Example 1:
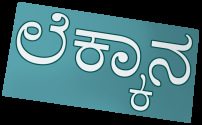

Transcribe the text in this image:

ಲೆಕ್ಕಾನ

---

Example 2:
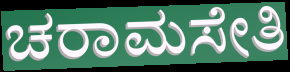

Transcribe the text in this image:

ಚರಾಮಸೇತಿ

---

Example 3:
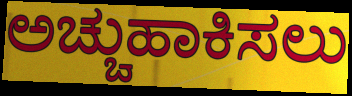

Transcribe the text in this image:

ಅಚ್ಚುಹಾಕಿಸಲು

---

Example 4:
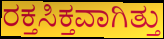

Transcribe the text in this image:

ರಕ್ತಸಿಕ್ತವಾಗಿತ್ತು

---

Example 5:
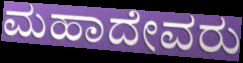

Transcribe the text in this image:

ಮಹಾದೇವರು